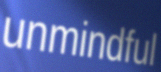
unmindful